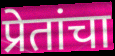
प्रेतांचा